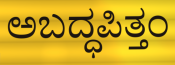
ಅಬದ್ಧಪಿತ್ತಂ